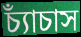
চ্যাঁচাস